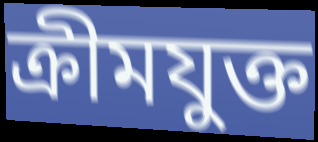
ক্ৰীমযুক্ত